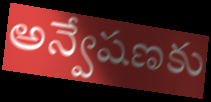
అన్వేషణకు